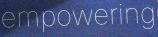
empowering